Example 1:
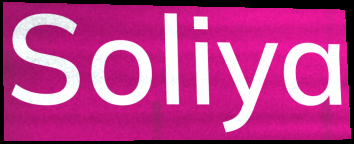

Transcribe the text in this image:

Soliya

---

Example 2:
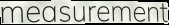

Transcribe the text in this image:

measurement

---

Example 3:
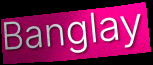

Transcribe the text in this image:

Banglay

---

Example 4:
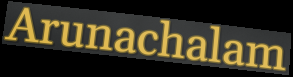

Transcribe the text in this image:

Arunachalam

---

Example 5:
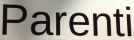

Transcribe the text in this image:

Parenti